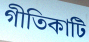
গীতিকাটি